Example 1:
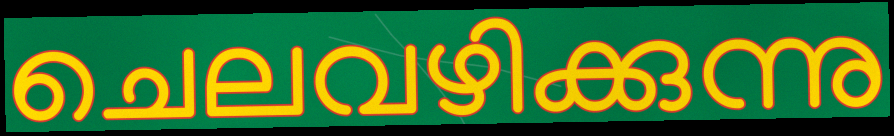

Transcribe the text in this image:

ചെലവഴിക്കുന്നു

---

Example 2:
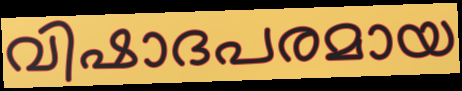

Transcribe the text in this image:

വിഷാദപരമായ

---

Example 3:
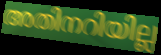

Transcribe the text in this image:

അതിനറിയില്ല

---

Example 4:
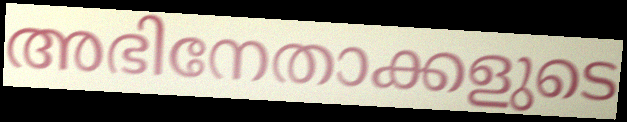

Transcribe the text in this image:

അഭിനേതാക്കളുടെ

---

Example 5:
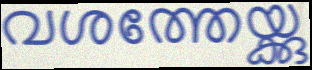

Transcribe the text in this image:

വശത്തേയ്ക്കു